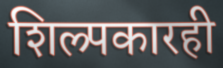
शिल्पकारही